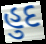
હુદ